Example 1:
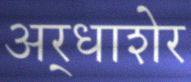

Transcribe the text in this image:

अर्धाशेर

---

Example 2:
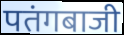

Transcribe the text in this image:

पतंगबाजी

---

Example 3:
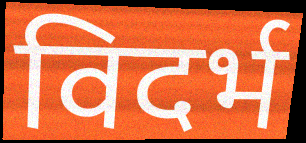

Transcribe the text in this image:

विदर्भ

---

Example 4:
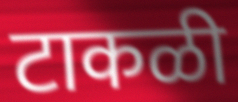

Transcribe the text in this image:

टाकळी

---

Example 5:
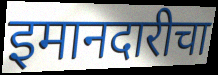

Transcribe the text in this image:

इमानदारीचा